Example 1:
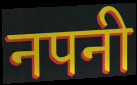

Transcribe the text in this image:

नपनी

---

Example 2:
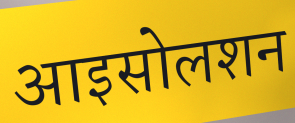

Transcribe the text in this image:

आइसोलशन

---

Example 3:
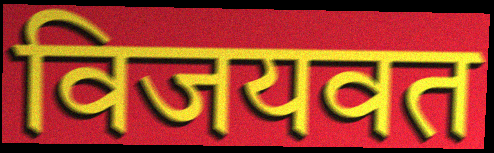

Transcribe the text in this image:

विजयवत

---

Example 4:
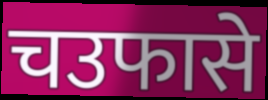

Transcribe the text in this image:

चउफासे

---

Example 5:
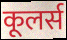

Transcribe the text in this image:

कूलर्स